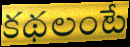
కథలంటే